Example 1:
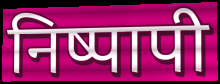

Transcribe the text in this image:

निष्पापी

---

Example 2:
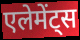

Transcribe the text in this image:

एलेमेंट्स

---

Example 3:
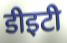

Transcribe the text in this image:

डीइटी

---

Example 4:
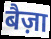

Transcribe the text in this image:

बैज़ा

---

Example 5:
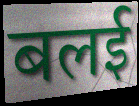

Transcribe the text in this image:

बलई